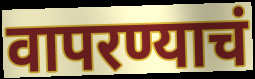
वापरण्याचं